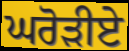
ਘਰੋੜੀਏ